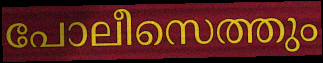
പോലീസെത്തും